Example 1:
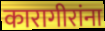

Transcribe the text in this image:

कारागीरांना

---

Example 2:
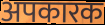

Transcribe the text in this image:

अपकारक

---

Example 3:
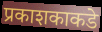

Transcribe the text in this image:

प्रकाशकाकडे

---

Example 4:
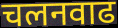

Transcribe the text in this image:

चलनवाढ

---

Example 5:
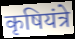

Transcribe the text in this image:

कृषियंत्रे